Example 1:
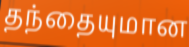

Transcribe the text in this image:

தந்தையுமான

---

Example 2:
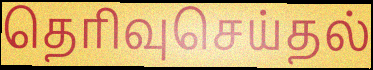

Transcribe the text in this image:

தெரிவுசெய்தல்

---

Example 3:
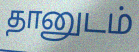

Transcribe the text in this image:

தானுடம்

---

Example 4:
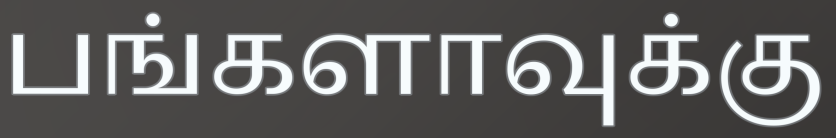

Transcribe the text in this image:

பங்களாவுக்கு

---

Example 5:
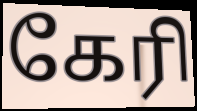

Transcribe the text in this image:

கேரி